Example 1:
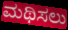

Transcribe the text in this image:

ಮಥಿಸಲು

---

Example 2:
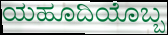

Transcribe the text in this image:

ಯಹೂದಿಯೊಬ್ಬ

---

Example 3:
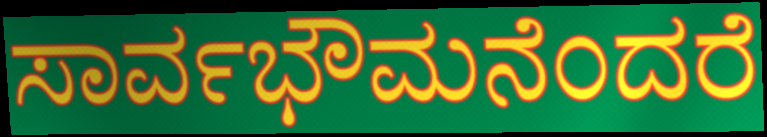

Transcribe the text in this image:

ಸಾರ್ವಭೌಮನೆಂದರೆ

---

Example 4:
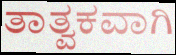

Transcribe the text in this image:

ತಾತ್ವಕವಾಗಿ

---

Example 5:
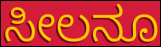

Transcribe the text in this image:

ಸೀಲನೂ